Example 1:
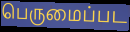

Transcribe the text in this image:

பெருமைப்பட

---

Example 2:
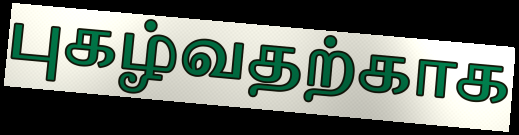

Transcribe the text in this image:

புகழ்வதற்காக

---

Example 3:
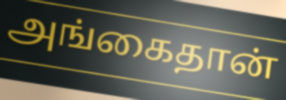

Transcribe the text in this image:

அங்கைதான்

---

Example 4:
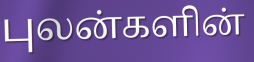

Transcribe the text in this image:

புலன்களின்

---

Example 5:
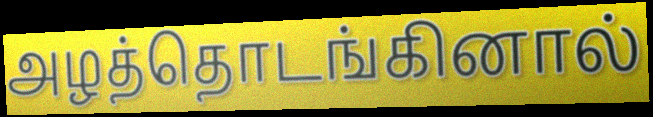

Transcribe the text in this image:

அழத்தொடங்கினால்